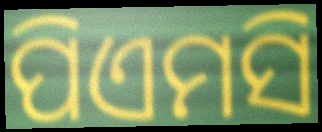
ପିଏମସି